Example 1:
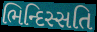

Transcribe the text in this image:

ભિન્દિસ્સતિ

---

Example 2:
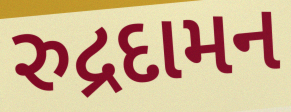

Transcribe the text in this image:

રુદ્રદામન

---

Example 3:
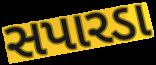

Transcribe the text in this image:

સપારડા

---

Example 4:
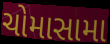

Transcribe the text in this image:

ચોમાસામા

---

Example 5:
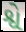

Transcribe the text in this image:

શ્વે